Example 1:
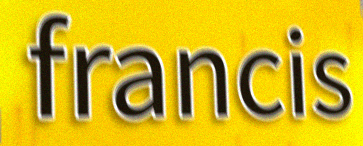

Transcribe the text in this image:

francis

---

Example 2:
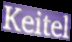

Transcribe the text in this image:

Keitel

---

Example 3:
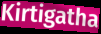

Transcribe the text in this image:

Kirtigatha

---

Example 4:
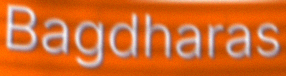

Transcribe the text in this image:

Bagdharas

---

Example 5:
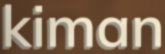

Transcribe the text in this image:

kiman